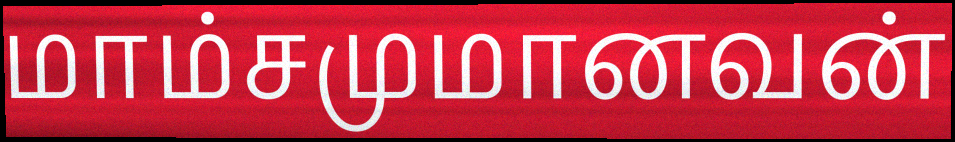
மாம்சமுமானவன்